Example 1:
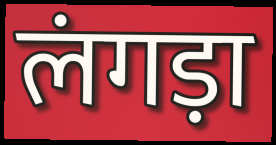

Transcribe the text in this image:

लंगड़ा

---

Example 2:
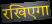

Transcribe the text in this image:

रखिएगा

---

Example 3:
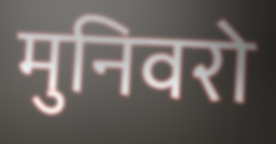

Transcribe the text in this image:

मुनिवरो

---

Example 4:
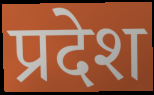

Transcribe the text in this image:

प्रदेश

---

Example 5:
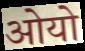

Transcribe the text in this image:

ओयो